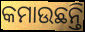
କମାଉଛନ୍ତି